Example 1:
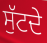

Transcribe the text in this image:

ਸੁੱਟਦੇ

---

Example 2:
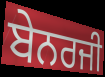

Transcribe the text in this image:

ਬੇਨਰਜੀ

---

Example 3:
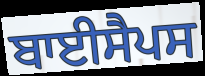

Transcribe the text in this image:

ਬਾਈਸੈਪਸ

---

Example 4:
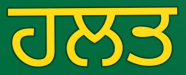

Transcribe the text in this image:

ਹਲਤ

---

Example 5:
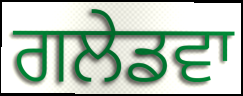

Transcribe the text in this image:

ਗਲੇਡਵਾ